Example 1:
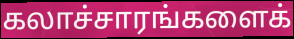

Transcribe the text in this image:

கலாச்சாரங்களைக்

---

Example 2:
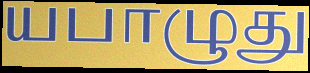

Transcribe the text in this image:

யபாழுது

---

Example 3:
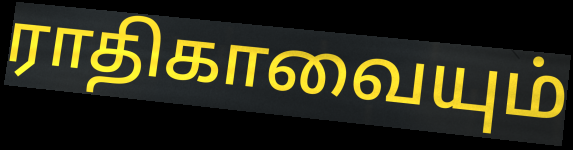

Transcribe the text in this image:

ராதிகாவையும்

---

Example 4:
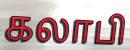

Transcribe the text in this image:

கலாபி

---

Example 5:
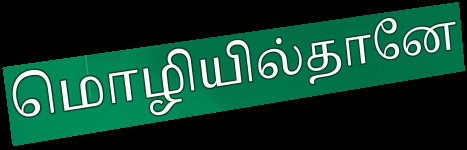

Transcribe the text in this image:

மொழியில்தானே